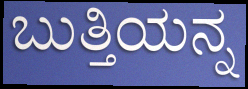
ಬುತ್ತಿಯನ್ನ